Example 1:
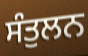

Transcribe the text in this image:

ਸੰਤੁਲਨ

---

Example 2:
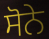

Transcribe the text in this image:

ਸੋਨੇ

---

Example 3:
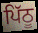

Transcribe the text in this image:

ਪਿੱਠੂ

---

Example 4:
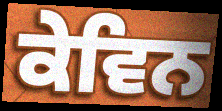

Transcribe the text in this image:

ਕੇਵਿਨ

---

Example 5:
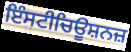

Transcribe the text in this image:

ਇੰਸਟੀਚਿਊਸ਼ਨਜ਼